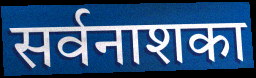
सर्वनाशका